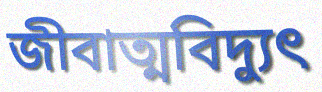
জীবাত্মবিদ্যুৎ